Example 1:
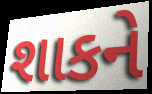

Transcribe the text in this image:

શાકને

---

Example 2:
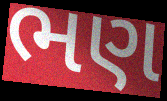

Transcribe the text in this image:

ભણ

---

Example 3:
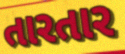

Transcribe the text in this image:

તારતાર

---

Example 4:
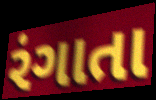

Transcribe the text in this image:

રંગાતા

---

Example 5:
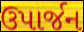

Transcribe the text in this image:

ઉપાર્જન